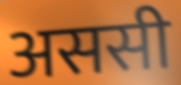
अससी